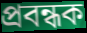
প্ৰবন্ধক